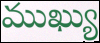
ముఖ్యు